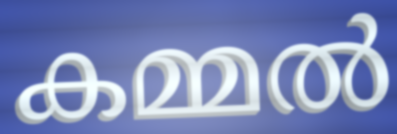
കമ്മൽ